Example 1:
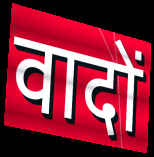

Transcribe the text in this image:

वादों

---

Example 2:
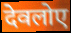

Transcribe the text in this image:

देवलोए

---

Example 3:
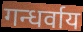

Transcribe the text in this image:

गन्धर्वाय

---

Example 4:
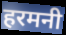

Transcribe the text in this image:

हरमनी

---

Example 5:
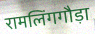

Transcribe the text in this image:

रामलिंगगौड़ा